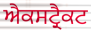
ਐਕਸਟ੍ਰੈਕਟ